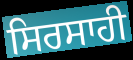
ਸਿਰਸਾਹੀ